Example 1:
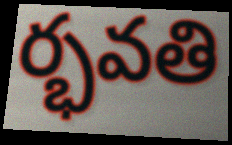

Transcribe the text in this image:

ర్భవతి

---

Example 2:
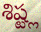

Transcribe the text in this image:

శిష్ట్ల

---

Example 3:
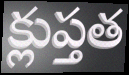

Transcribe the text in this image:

క్లుప్తత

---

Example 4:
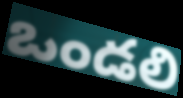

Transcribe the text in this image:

ఒండలి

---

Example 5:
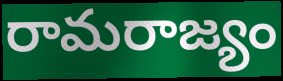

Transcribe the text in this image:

రామరాజ్యం